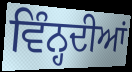
ਵਿੰਨ੍ਹਦੀਆਂ